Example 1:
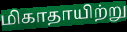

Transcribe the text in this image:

மிகாதாயிற்று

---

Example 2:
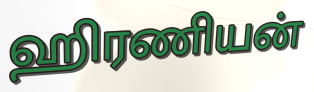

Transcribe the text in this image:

ஹிரணியன்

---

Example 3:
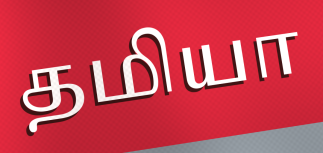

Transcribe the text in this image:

தமியா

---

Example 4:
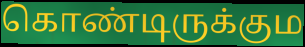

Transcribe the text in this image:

கொண்டிருக்கும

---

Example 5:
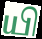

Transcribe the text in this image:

யி